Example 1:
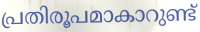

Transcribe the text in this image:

പ്രതിരൂപമാകാറുണ്ട്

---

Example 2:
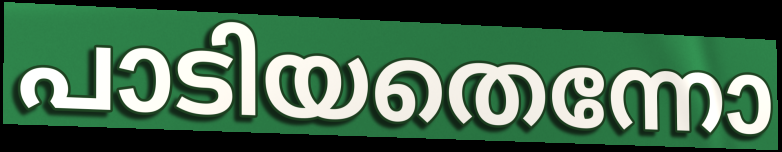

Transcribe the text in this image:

പാടിയതെന്നോ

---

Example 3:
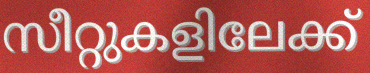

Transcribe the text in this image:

സീറ്റുകളിലേക്ക്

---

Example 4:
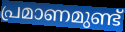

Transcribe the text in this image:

പ്രമാണമുണ്ട്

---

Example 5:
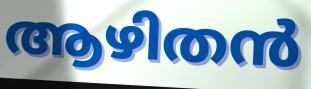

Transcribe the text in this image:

ആഴിതൻ